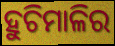
ହୁଚିମାଳିର